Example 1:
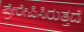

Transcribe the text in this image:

ಪ್ರೇರೇಪಿಸಿರುತ್ತದೆ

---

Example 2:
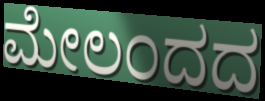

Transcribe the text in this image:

ಮೇಲಂದದ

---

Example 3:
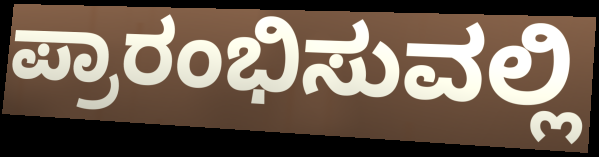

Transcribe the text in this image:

ಪ್ರಾರಂಭಿಸುವಲ್ಲಿ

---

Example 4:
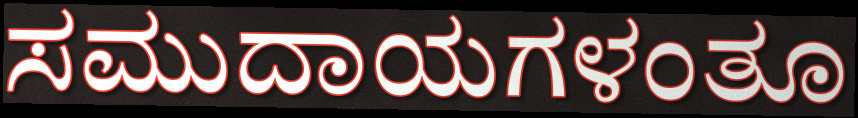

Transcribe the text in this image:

ಸಮುದಾಯಗಳಂತೂ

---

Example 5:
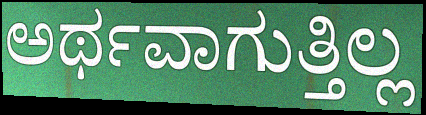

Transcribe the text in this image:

ಅರ್ಥವಾಗುತ್ತಿಲ್ಲ